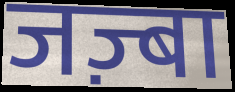
जज़्बा